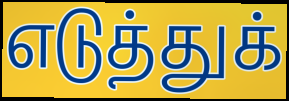
எடுத்துக்